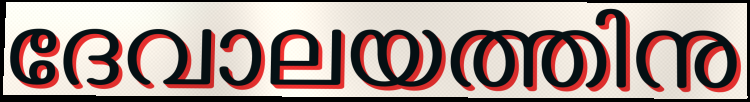
ദേവാലയത്തിനു